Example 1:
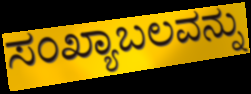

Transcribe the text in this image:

ಸಂಖ್ಯಾಬಲವನ್ನು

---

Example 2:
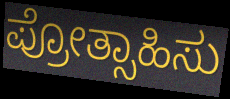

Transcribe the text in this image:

ಪ್ರೋತ್ಸಾಹಿಸು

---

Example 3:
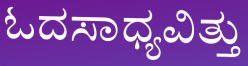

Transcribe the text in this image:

ಓದಸಾಧ್ಯವಿತ್ತು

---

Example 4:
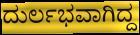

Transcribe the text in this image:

ದುರ್ಲಭವಾಗಿದ್ದ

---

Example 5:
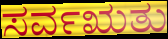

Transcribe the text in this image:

ಸರ್ವಋತು